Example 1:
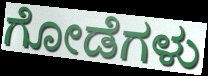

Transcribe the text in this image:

ಗೋಡೆಗಳು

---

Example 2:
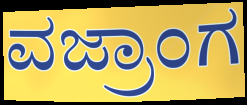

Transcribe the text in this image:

ವಜ್ರಾಂಗ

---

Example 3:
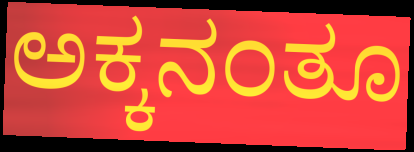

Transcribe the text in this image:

ಅಕ್ಕನಂತೂ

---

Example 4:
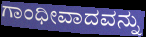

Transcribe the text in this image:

ಗಾಂಧೀವಾದವನ್ನು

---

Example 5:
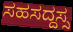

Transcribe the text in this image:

ಸಹಸದ್ದಸ್ಸ